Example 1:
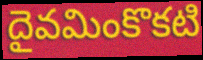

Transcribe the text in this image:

దైవమింకొకటి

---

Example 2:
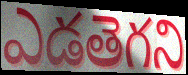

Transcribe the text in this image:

ఎడతెగని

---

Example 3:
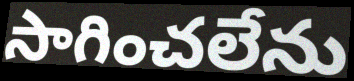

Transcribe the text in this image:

సాగించలేను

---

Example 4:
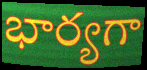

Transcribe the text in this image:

భార్యగా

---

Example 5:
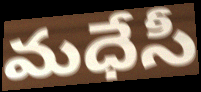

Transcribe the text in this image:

మధేసీ